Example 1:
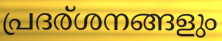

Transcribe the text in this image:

പ്രദര്ശനങ്ങളും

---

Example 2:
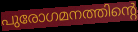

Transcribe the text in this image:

പുരോഗമനത്തിന്റെ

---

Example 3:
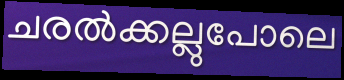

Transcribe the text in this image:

ചരൽക്കല്ലുപോലെ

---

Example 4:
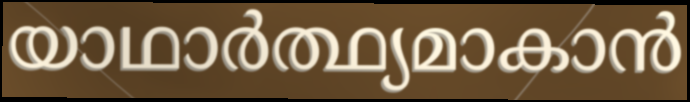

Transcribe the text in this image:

യാഥാർത്ഥ്യമാകാൻ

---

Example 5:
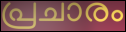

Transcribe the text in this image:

പ്രചാരം